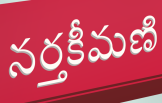
నర్తకీమణి